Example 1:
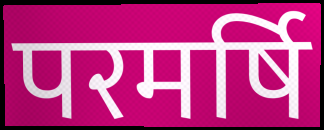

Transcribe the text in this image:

परमर्षि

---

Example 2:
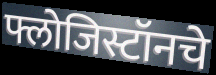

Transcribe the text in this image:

फ्लोजिस्टॉनचे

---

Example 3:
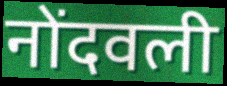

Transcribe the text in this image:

नोंदवली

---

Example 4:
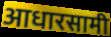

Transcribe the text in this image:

आधारसामी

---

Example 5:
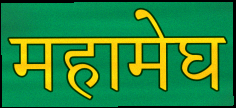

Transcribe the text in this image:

महामेघ